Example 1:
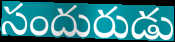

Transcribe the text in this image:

సందురుడు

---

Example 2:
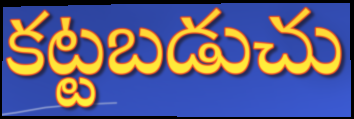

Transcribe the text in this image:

కట్టబడుచు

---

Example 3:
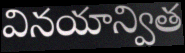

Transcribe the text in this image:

వినయాన్విత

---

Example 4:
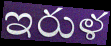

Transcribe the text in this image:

ఇరుళ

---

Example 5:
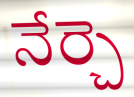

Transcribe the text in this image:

నేర్చె